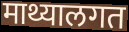
माथ्यालगत